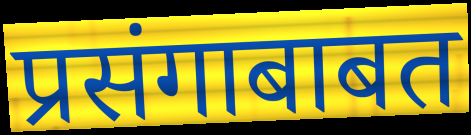
प्रसंगाबाबत